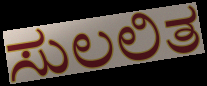
ಸುಲಲಿತ